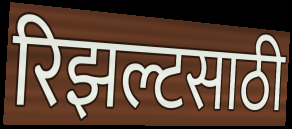
रिझल्टसाठी